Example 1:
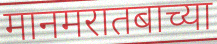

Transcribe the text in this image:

मानमरातबाच्या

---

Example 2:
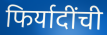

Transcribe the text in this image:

फिर्यादींची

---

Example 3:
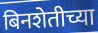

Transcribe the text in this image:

बिनशेतीच्या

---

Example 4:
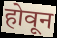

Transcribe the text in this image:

होवून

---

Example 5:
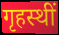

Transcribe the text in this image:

गृहस्थीं